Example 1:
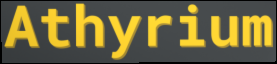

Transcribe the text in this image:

Athyrium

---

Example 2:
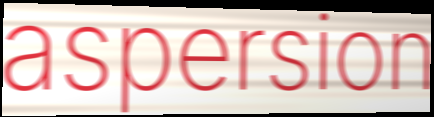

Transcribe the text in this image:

aspersion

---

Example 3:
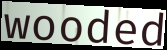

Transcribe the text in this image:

wooded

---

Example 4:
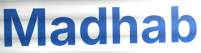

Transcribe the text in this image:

Madhab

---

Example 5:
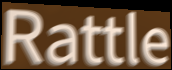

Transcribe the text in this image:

Rattle